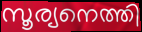
സൂര്യനെത്തി